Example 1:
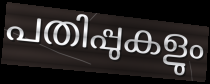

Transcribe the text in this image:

പതിപ്പുകളും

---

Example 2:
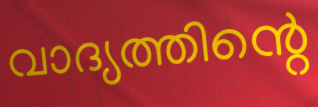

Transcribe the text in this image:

വാദ്യത്തിന്റെ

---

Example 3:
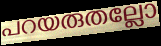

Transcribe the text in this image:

പറയരുതല്ലോ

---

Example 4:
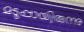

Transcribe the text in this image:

മടുപ്പായിരുന്നു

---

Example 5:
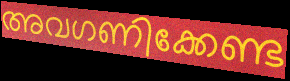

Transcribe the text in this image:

അവഗണിക്കേണ്ട